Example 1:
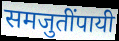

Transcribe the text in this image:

समजुतींपायी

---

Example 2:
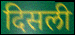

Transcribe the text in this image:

दिसली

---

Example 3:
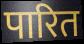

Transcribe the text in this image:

पारित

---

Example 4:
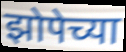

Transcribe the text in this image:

झोपेच्या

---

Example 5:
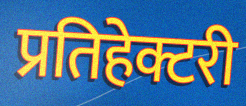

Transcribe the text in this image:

प्रतिहेक्टरी